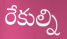
రేకుల్ని